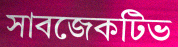
সাবজেকটিভ